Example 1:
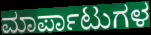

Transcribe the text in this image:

ಮಾರ್ಪಾಟುಗಳ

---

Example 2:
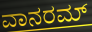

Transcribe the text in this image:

ವಾನರಮ್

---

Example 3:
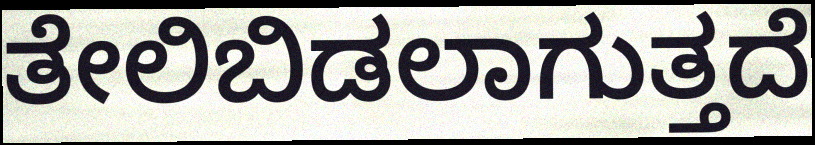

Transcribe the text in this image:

ತೇಲಿಬಿಡಲಾಗುತ್ತದೆ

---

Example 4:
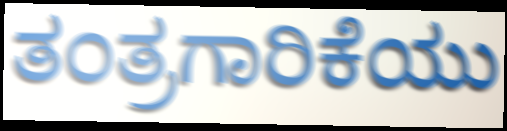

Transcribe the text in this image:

ತಂತ್ರಗಾರಿಕೆಯು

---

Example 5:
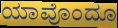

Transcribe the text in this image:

ಯಾವೊಂದೂ